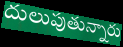
దులుపుతున్నారు